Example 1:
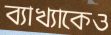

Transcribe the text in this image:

ব্যাখ্যাকেও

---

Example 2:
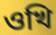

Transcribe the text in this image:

ওখি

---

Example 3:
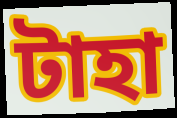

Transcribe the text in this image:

টাহা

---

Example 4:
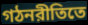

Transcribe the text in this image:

গঠনরীতিতে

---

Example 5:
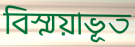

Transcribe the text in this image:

বিস্ময়াভূত